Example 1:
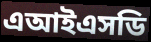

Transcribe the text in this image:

এআইএসডি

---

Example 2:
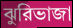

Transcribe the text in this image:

ঝুরিভাজা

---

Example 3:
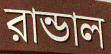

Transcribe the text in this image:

রান্ডাল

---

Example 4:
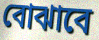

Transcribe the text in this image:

বোঝাবে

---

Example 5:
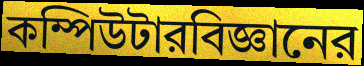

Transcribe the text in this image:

কম্পিউটারবিজ্ঞানের